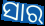
ସାର